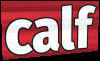
calf